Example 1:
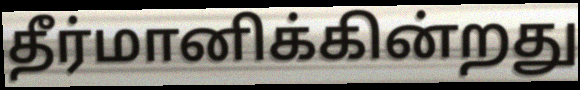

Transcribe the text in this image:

தீர்மானிக்கின்றது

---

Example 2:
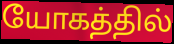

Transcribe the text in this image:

யோகத்தில்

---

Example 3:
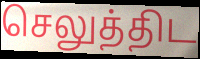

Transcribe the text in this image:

செலுத்திட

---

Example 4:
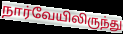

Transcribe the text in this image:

நார்வேயிலிருந்து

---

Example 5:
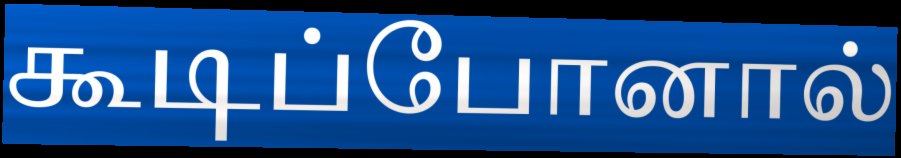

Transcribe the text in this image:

கூடிப்போனால்